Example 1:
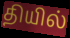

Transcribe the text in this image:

தியில்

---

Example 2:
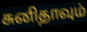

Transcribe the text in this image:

சுனிதாவும்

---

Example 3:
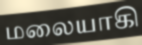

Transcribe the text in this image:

மலையாகி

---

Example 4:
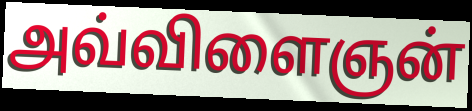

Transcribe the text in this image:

அவ்விளைஞன்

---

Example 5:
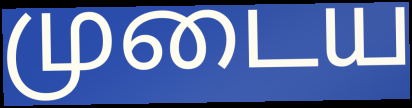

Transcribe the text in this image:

முடைய